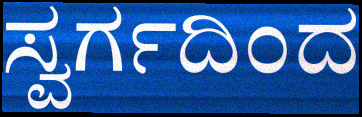
ಸ್ವರ್ಗದಿಂದ